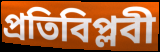
প্রতিবিপ্লবী